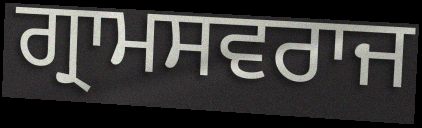
ਗ੍ਰਾਮਸਵਰਾਜ